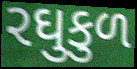
રઘુકુળ